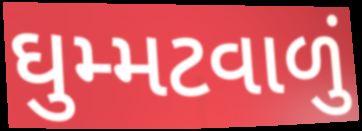
ઘુમ્મટવાળું